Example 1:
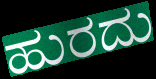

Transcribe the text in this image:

ಹುರದು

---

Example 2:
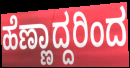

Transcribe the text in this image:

ಹೆಣ್ಣಾದ್ದರಿಂದ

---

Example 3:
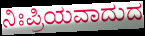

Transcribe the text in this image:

ನಿಃಪ್ರಿಯವಾದುದ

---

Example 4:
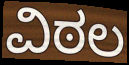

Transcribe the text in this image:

ವಿಠಲ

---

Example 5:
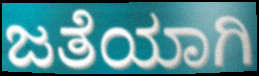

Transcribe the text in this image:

ಜತೆಯಾಗಿ